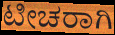
ಟೀಚರಾಗಿ